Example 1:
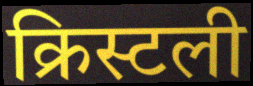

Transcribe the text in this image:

क्रिस्टली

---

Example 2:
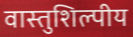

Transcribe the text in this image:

वास्तुशिल्पीय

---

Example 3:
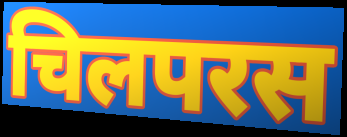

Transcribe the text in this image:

चिलपरस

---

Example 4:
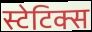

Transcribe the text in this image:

स्टेटिक्स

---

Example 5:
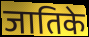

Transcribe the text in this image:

जातिके